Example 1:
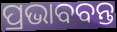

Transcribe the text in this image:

ପ୍ରଭାବବନ୍ତ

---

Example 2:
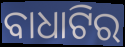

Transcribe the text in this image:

ବାଧାଟିର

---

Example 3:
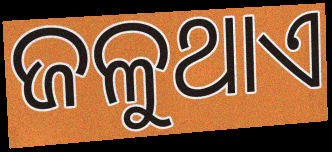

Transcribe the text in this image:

ଜଳୁଥାଏ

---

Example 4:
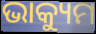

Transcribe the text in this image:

ଭାକ୍ୟୁମ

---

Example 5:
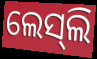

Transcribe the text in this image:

ଲେସ୍‍ଲି